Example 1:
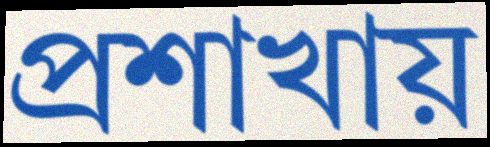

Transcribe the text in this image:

প্রশাখায়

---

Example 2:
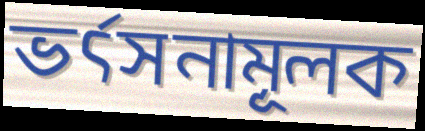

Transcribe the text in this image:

ভর্ৎসনামূলক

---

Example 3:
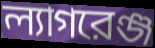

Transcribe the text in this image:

ল্যাগরেঞ্জ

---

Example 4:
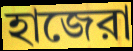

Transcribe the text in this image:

হাজেরা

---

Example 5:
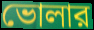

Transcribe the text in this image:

ভোলার